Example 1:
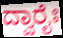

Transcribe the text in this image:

ದ್ವಾರೈಃ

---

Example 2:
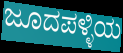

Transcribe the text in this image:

ಜೂದಪಳ್ಳಿಯ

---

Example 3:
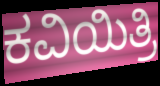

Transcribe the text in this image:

ಕವಿಯಿತ್ರಿ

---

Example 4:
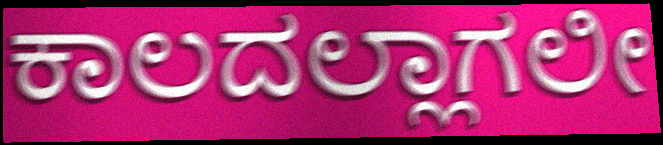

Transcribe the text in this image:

ಕಾಲದಲ್ಲಾಗಲೀ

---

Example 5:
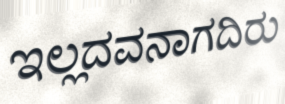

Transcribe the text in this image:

ಇಲ್ಲದವನಾಗದಿರು